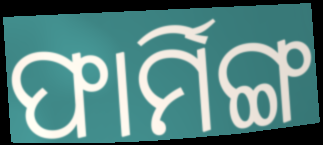
ଫାର୍ମିଙ୍ଗ